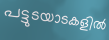
പട്ടുടയാടകളിൽ